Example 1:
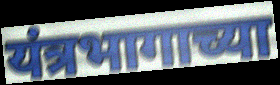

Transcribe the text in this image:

यंत्रभागाच्या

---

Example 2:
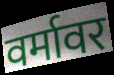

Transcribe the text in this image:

वर्मावर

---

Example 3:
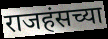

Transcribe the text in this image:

राजहंसच्या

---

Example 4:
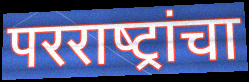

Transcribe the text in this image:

परराष्ट्रांचा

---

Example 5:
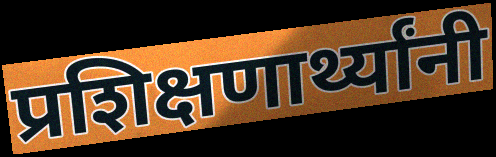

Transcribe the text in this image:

प्रशिक्षणार्थ्यांनी